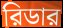
রিডার